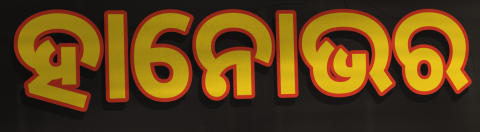
ହାନୋଭର